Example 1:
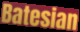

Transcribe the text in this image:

Batesian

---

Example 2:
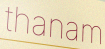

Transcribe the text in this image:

thanam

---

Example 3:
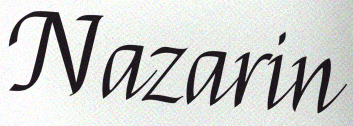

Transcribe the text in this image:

Nazarin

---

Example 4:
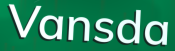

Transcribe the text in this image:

Vansda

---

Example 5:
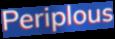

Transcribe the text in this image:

Periplous